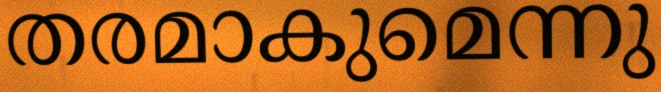
തരമാകുമെന്നു